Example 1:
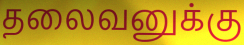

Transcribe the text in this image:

தலைவனுக்கு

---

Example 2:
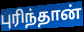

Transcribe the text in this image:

புரிந்தான்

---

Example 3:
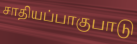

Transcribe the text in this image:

சாதியப்பாகுபாடு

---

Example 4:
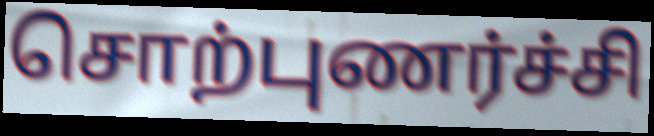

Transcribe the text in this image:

சொற்புணர்ச்சி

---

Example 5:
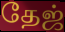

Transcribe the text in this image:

தேஜ்